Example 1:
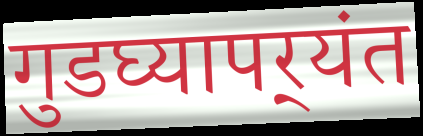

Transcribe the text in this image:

गुडघ्यापर्यंत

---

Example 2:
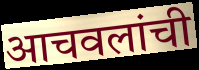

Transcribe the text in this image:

आचवलांची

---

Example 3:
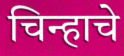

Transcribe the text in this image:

चिन्हाचे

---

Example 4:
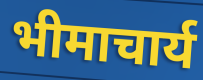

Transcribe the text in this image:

भीमाचार्य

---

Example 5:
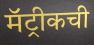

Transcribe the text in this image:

मॅट्रीकची